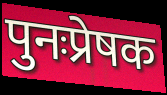
पुनःप्रेषक